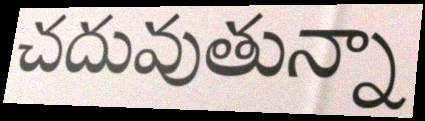
చదువుతున్నా